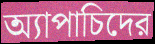
অ্যাপাচিদের